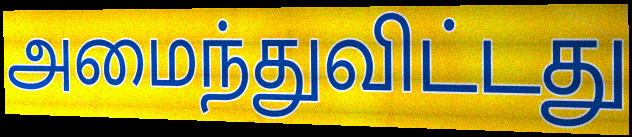
அமைந்துவிட்டது